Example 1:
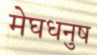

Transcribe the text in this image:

मेघधनुष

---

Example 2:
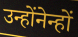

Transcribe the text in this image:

उन्होंनेन्हों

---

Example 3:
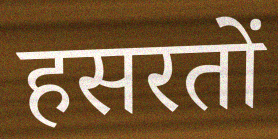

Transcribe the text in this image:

हसरतों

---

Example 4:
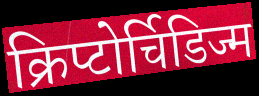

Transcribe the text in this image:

क्रिप्टोर्चिडिज्म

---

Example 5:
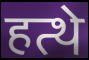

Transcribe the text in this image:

हत्थे